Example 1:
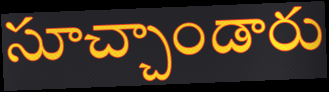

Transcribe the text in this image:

సూచ్చాండారు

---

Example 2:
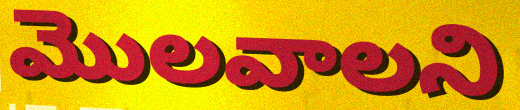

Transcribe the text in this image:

మొలవాలని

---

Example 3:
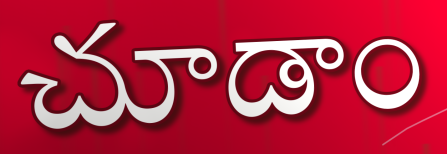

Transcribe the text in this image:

చూడాం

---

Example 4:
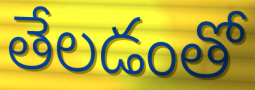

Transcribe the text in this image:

తేలడంతో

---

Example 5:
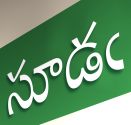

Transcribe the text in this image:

సూడఁ